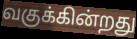
வகுக்கின்றது